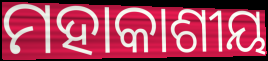
ମହାକାଶୀୟ